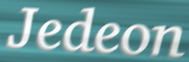
Jedeon